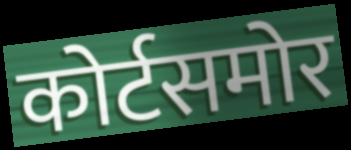
कोर्टसमोर